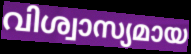
വിശ്വാസ്യമായ